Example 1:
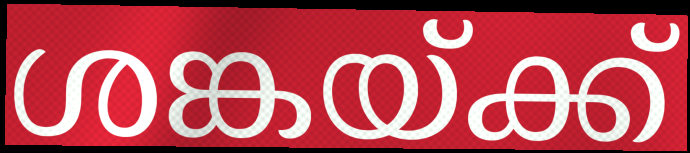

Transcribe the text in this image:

ശങ്കയ്ക്ക്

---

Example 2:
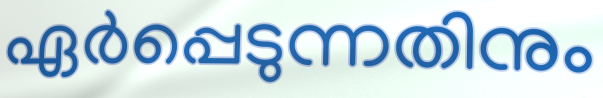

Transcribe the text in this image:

ഏർപ്പെടുന്നതിനും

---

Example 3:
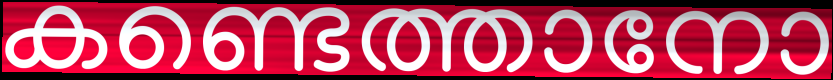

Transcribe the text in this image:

കണ്ടെത്താനോ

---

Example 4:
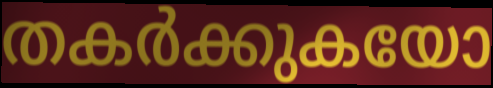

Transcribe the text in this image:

തകർക്കുകയോ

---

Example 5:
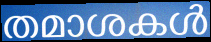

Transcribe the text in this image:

തമാശകൾ